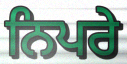
ਨਿਪਰੇ